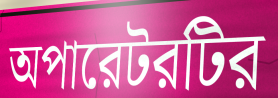
অপারেটরটির